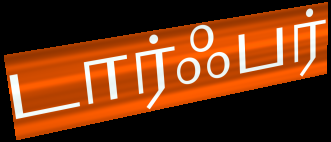
டார்ஃபர்